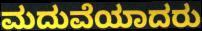
ಮದುವೆಯಾದರು